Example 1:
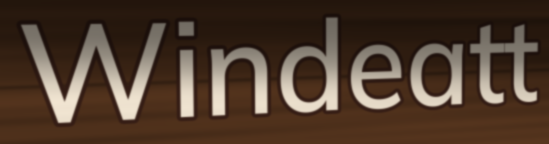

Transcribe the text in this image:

Windeatt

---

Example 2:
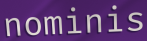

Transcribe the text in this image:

nominis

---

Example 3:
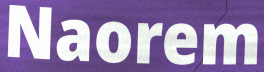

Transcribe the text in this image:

Naorem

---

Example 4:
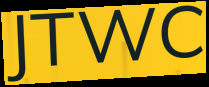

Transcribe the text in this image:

JTWC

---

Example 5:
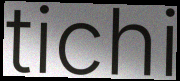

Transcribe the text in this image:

tichi